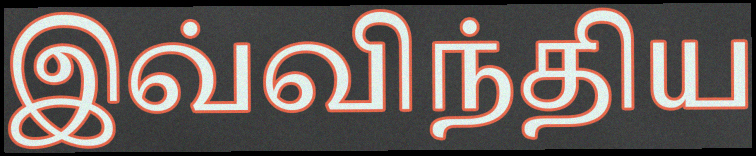
இவ்விந்திய